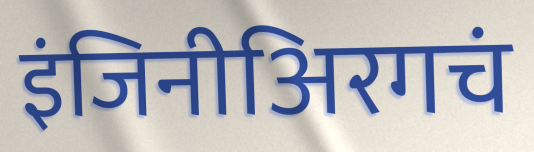
इंजिनीअिरगचं